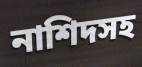
নাশিদসহ